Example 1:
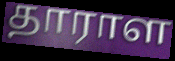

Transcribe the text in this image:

தாராள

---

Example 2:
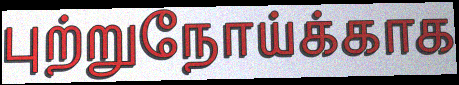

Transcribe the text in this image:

புற்றுநோய்க்காக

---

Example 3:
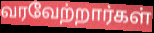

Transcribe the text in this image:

வரவேற்றார்கள்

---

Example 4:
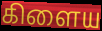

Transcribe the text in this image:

கிளைய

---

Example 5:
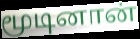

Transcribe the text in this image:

மூடினான்